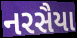
નરસૈયા